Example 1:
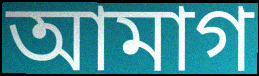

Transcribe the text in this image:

আমাগ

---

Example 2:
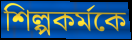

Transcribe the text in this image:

শিল্পকর্মকে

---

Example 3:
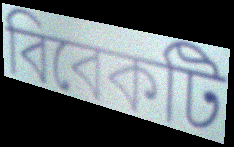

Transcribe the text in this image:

বিবেকটি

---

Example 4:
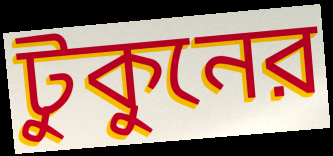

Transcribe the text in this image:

টুকুনের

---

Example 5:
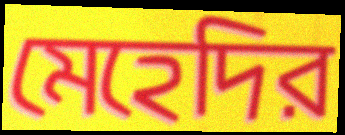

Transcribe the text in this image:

মেহেদির